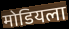
मोडियला